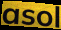
asol